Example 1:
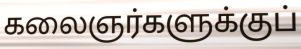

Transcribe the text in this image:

கலைஞர்களுக்குப்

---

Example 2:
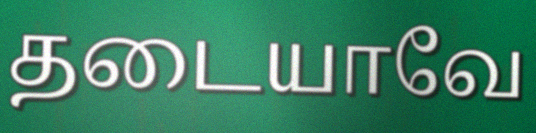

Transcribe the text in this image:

தடையாவே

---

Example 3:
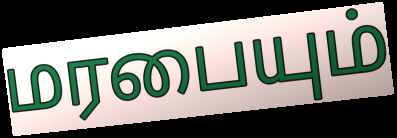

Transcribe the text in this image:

மரபையும்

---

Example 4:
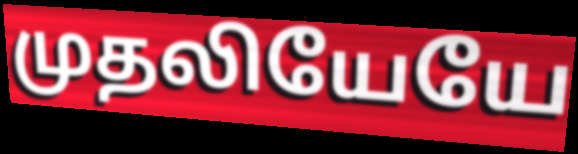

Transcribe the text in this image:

முதலியேயே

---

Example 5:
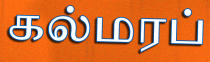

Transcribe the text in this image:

கல்மரப்